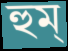
হুম্